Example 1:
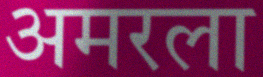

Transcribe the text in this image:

अमरला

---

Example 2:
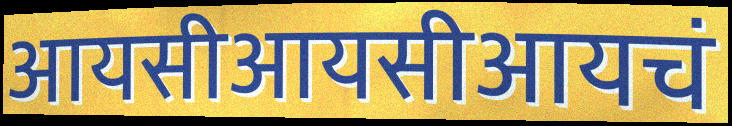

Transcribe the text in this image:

आयसीआयसीआयचं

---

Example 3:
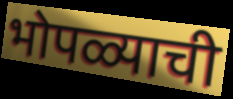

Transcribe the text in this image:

भोपळ्याची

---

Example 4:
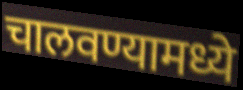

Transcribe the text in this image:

चालवण्यामध्ये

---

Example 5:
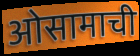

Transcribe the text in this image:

ओसामाची